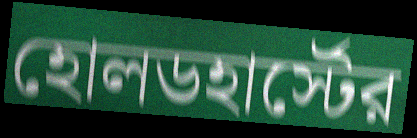
হোলডহার্স্টের